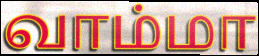
வாம்மா